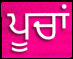
ਪੂਚਾਂ